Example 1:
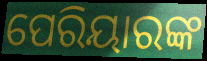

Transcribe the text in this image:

ପେରିୟାରଙ୍କ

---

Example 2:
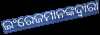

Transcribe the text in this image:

ଇଂରେଜମାନଙ୍କଦ୍ୱାରା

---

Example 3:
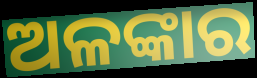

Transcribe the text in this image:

ଅଳଙ୍କାର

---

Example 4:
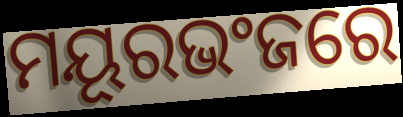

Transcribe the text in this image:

ମୟୂରଭଂଜରେ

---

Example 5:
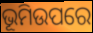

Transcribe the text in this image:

ଭୂମିଉପରେ